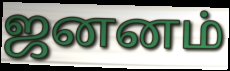
ஜனனம்